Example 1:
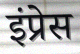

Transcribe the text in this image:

इंप्रेस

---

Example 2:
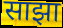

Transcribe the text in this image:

साझा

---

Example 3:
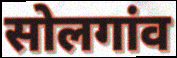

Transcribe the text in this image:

सोलगांव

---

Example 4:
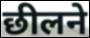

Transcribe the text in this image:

छीलने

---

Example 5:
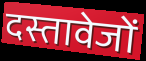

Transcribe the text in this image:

दस्तावेजों